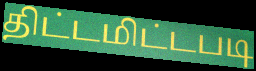
திட்டமிட்டபடி